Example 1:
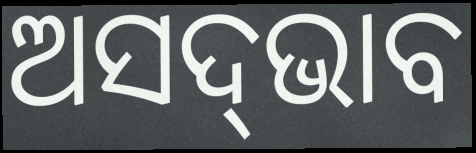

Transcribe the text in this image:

ଅସଦ୍‌ଭାବ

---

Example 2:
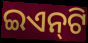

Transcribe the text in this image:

ଇଏନ୍‌ଟି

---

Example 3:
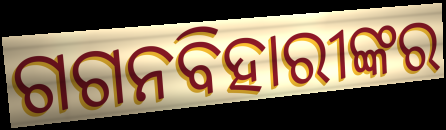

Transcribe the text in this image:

ଗଗନବିହାରୀଙ୍କର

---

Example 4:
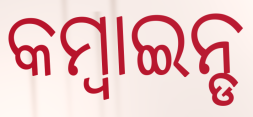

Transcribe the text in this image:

କମ୍ବାଇନ୍ଡ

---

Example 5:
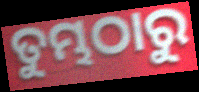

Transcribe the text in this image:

ତୁମ୍ଭଠାରୁ